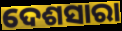
ଦେଶସାରା